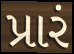
પ્રારં